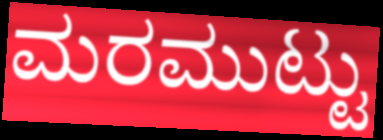
ಮರಮುಟ್ಟು